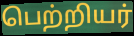
பெற்றியர்